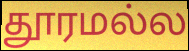
தூரமல்ல